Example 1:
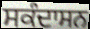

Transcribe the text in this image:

ਸਕੰਦਾਸਨ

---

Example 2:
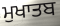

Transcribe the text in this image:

ਮੁਖਾਤਬ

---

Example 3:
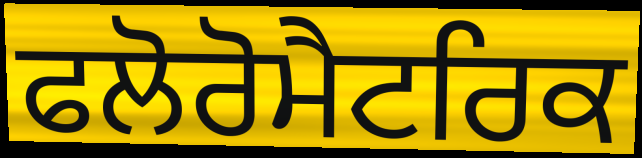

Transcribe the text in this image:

ਫਲੋਰੋਮੈਟਰਿਕ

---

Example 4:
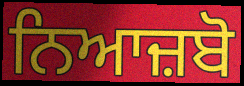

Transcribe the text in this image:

ਨਿਆਜ਼ਬੋ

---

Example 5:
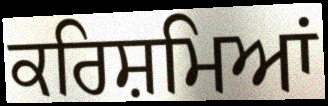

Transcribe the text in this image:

ਕਰਿਸ਼ਮਿਆਂ